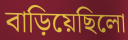
বাড়িয়েছিলো